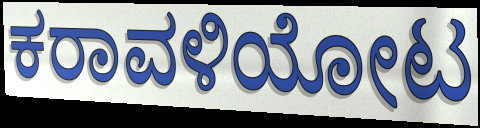
ಕರಾವಳಿಯೋಟ